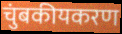
चुंबकीयकरण